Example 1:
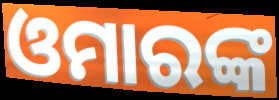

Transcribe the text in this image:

ଓମାରଙ୍କ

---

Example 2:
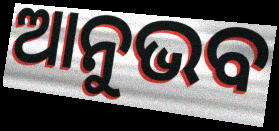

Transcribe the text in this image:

ଆନୁଭବ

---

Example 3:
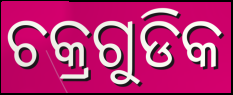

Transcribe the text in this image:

ଚକ୍ରଗୁଡିକ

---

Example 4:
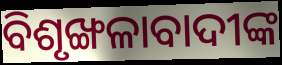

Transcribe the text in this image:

ବିଶୃଙ୍ଖଳାବାଦୀଙ୍କ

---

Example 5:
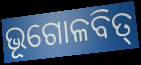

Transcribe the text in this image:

ଭୂଗୋଳବିତ୍